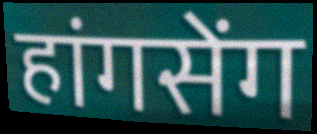
हांगसेंग